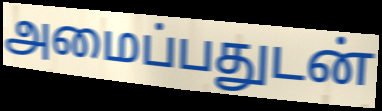
அமைப்பதுடன்